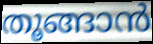
തൂങ്ങാൻ